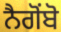
ਨੈਗੋਂਬੋ